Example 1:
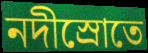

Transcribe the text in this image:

নদীস্রোতে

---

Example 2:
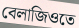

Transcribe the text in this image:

বেলাজিওতে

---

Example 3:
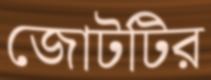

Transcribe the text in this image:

জোটটির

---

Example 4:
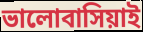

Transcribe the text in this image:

ভালোবাসিয়াই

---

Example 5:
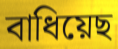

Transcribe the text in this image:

বাধিয়েছ